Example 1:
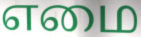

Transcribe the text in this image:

எமை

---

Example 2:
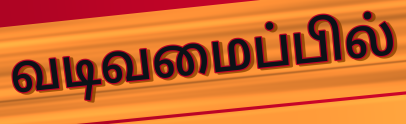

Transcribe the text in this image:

வடிவமைப்பில்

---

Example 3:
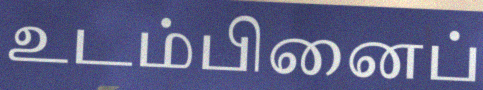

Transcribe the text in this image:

உடம்பினைப்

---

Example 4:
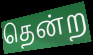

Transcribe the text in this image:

தென்ற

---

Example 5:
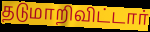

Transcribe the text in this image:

தடுமாறிவிட்டார்